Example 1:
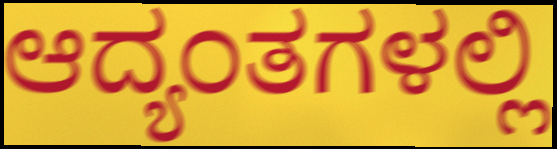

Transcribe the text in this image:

ಆದ್ಯಂತಗಳಲ್ಲಿ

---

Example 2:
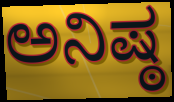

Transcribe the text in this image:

ಅನಿಷ್ಠ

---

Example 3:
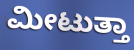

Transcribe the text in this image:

ಮೀಟುತ್ತಾ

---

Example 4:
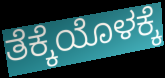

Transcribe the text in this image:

ತೆಕ್ಕೆಯೊಳಕ್ಕೆ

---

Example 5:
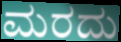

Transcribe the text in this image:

ಮರದು